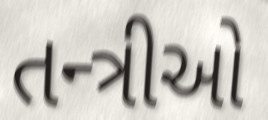
તન્ત્રીઓ